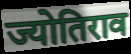
ज्‍योतिराव